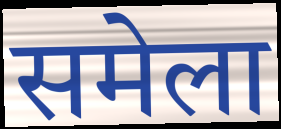
समेला